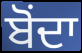
ਬੋੰਦਾ